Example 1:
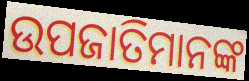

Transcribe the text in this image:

ଉପଜାତିମାନଙ୍କ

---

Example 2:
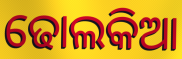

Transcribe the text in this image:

ଢୋଲକିଆ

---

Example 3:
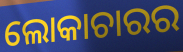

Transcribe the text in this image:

ଲୋକାଚାରର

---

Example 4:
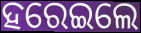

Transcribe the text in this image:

ହରେଇଲେ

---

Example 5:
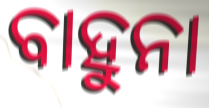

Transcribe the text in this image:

ବାହୁନା